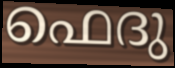
ഫെദു